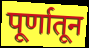
पूर्णातून